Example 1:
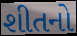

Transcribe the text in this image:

શીતનો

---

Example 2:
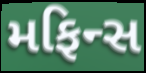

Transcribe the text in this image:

મફિન્સ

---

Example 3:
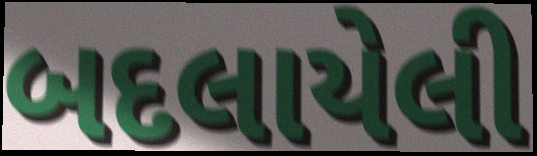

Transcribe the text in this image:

બદલાયેલી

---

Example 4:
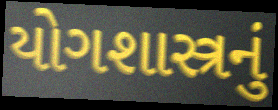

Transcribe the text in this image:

યોગશાસ્ત્રનું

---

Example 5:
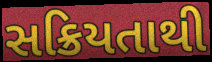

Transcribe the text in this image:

સક્રિયતાથી